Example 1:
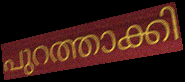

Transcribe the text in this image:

പുറത്താക്കി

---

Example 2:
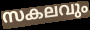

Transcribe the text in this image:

സകലവും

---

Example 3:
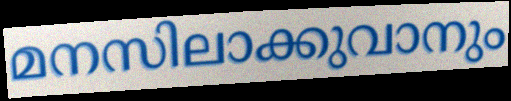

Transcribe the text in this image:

മനസിലാക്കുവാനും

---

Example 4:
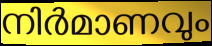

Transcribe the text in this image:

നിർമാണവും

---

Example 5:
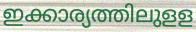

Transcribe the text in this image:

ഇക്കാര്യത്തിലുളള